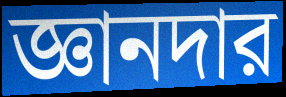
জ্ঞানদার